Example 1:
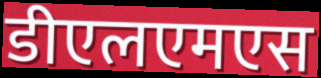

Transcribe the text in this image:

डीएलएमएस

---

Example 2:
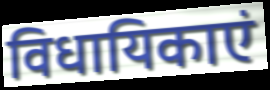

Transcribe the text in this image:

विधायिकाएं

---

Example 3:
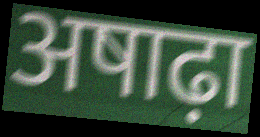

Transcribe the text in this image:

अषाढ़ा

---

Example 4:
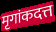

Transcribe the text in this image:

मृगांकदत्त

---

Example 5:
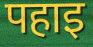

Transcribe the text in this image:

पहाइ